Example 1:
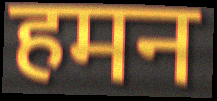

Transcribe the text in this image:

हमन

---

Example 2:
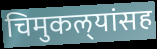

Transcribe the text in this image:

चिमुकल्यांसह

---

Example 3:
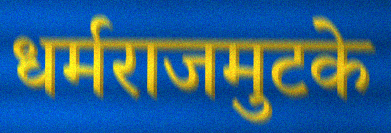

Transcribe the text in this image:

धर्मराजमुटके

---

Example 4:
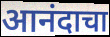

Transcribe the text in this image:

आनंदाचा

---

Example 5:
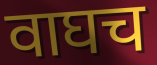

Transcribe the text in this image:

वाघच